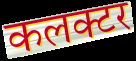
कलक्टर